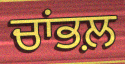
ਚਾਂਭਲ਼